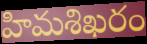
హిమశిఖరం